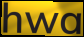
hwa